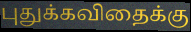
புதுக்கவிதைக்கு